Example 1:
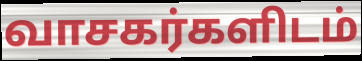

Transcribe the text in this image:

வாசகர்களிடம்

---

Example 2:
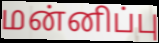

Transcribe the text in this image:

மன்னிப்பு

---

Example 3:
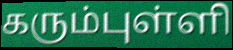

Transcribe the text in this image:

கரும்புள்ளி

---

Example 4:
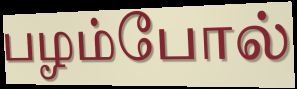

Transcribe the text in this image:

பழம்போல்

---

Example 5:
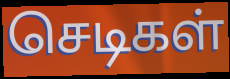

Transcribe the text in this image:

செடிகள்